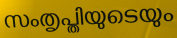
സംതൃപ്തിയുടെയും